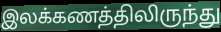
இலக்கணத்திலிருந்து